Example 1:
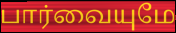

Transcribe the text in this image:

பார்வையுமே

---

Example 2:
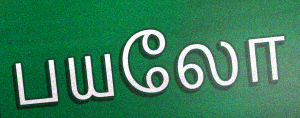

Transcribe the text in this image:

பயலோ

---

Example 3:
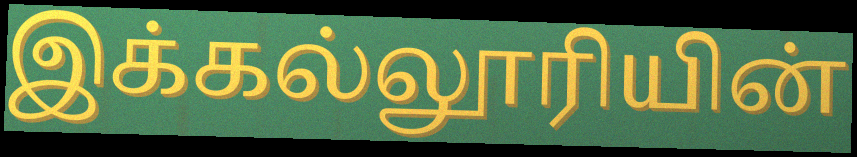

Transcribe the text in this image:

இக்கல்லூரியின்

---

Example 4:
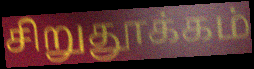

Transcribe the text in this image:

சிறுதூக்கம்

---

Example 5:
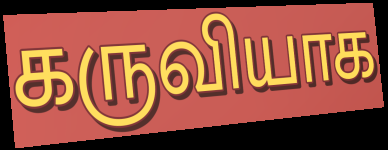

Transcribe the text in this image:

கருவியாக